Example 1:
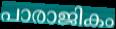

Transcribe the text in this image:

പാരാജികം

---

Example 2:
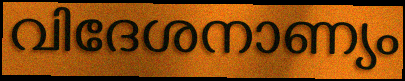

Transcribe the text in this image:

വിദേശനാണ്യം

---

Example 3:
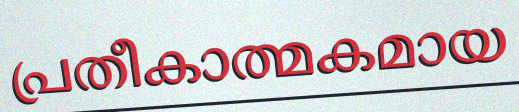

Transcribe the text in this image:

പ്രതീകാത്മകമായ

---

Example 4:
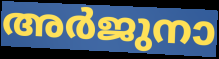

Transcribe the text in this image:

അർജുനാ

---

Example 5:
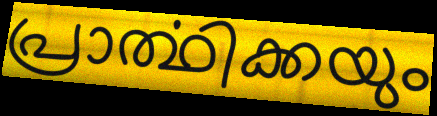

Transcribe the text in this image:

പ്രാൎത്ഥിക്കയും